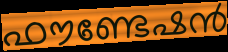
ഫൗണ്ടേഷൻ